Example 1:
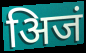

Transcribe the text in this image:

अिजं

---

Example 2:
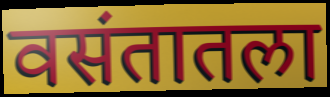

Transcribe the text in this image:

वसंतातला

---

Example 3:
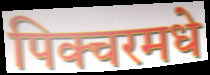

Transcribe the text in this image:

पिक्चरमधे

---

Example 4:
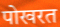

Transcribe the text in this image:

पोखरत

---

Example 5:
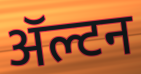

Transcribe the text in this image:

ॲल्टन